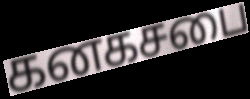
கனகசபை